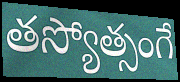
తస్యోత్సంగే